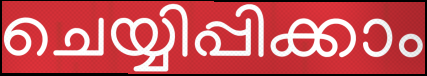
ചെയ്യിപ്പിക്കാം